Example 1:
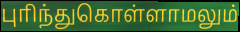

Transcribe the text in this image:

புரிந்துகொள்ளாமலும்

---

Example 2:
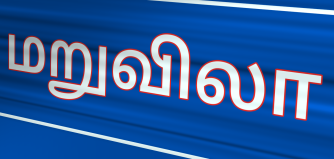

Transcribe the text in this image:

மறுவிலா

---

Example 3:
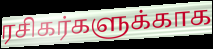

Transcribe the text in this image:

ரசிகர்களுக்காக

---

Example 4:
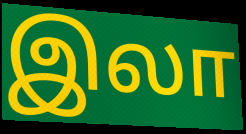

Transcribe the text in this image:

இலா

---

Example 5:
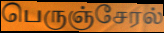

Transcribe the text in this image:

பெருஞ்சேரல்